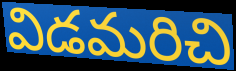
విడమరిచి